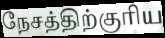
நேசத்திற்குரிய